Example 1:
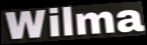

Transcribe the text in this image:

Wilma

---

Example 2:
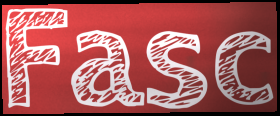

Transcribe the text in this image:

Fasc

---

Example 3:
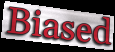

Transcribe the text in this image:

Biased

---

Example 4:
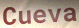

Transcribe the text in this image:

Cueva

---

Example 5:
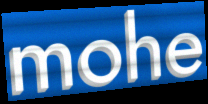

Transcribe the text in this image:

mohe